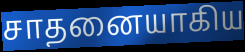
சாதனையாகிய